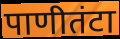
पाणीतंटा